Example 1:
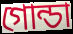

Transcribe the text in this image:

গোন্ডা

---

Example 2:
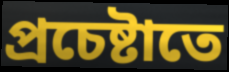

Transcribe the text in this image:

প্রচেষ্টাতে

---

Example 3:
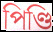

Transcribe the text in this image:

পিণ্ডি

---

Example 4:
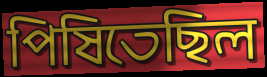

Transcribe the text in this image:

পিষিতেছিল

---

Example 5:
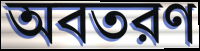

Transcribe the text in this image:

অবতরণ